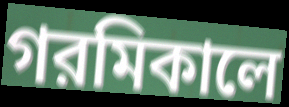
গরমিকালে